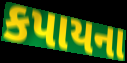
કપાયના